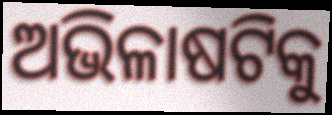
ଅଭିଳାଷଟିକୁ